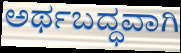
ಅರ್ಥಬದ್ಧವಾಗಿ